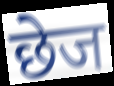
छेज